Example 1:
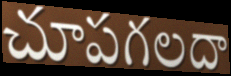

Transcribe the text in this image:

చూపగలదా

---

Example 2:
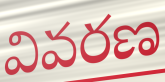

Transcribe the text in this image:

వివరణ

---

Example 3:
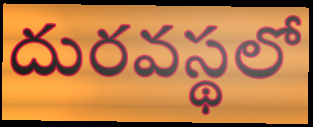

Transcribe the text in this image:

దురవస్థలో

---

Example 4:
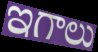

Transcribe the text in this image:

ఇగాలు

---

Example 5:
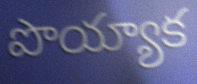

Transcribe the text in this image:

పొయ్యాక